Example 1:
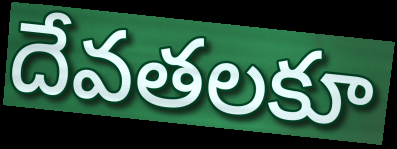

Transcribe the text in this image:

దేవతలకూ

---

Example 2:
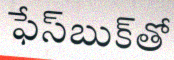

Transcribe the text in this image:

ఫేస్‌బుక్‌తో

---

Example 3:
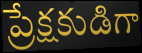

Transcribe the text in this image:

ప్రేక్షకుడిగా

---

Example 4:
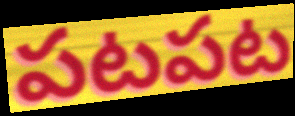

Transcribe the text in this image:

పటపట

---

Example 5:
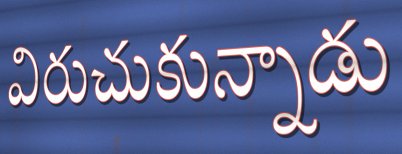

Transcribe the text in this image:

విరుచుకున్నాడు